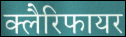
क्लैरिफायर